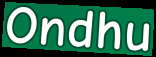
Ondhu